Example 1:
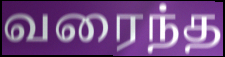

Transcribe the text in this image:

வரைந்த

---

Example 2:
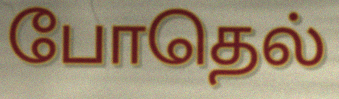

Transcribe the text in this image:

போதெல்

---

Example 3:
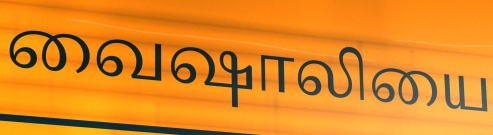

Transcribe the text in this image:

வைஷாலியை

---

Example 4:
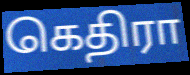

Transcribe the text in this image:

கெதிரா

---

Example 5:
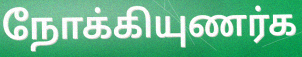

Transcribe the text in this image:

நோக்கியுணர்க